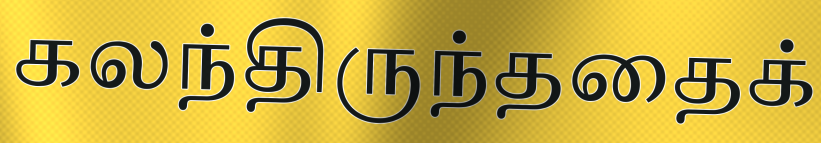
கலந்திருந்ததைக்